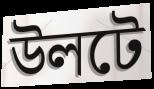
উলটে